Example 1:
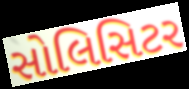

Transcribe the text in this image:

સોલિસિટર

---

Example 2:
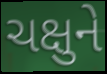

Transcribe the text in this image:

ચક્ષુને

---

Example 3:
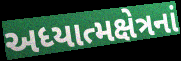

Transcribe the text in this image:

અધ્યાત્મક્ષેત્રનાં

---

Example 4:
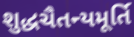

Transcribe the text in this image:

શુદ્ધચૈતન્યમૂર્તિ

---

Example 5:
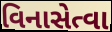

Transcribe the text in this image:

વિનાસેત્વા